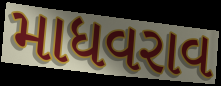
માધવરાવ